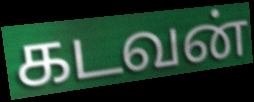
கடவன்